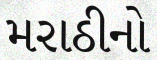
મરાઠીનો